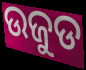
ଉଜୁଡ